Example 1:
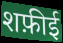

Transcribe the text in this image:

शफ़ीई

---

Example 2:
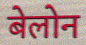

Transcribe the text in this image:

बेलोन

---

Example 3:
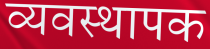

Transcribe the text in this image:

व्यवस्थापक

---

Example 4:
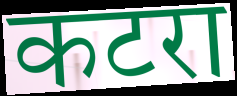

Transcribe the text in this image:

कटरा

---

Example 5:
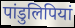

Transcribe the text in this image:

पांडुलिपियां